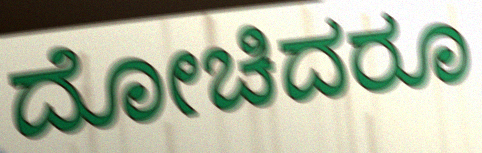
ದೋಚಿದರೂ